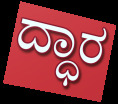
ದ್ಧಾರ